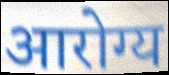
आरोग्य